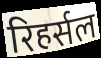
रिहर्सल